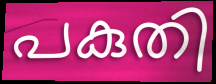
പകുതി